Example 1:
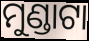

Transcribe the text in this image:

ମୁଣ୍ଡାଟା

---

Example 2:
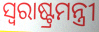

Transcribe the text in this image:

ସ୍ବରାଷ୍ଟ୍ରମନ୍ତ୍ରୀ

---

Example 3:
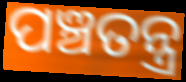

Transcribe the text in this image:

ପଞ୍ଚତନ୍ତ୍ର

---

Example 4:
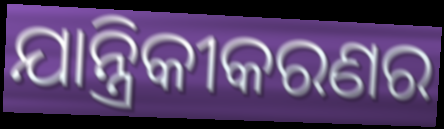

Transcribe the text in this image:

ଯାନ୍ତ୍ରିକୀକରଣର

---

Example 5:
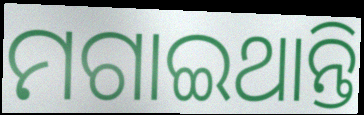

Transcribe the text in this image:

ମଗାଇଥାନ୍ତି